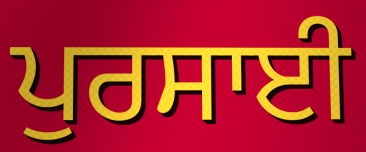
ਪੁਰਸਾਈ